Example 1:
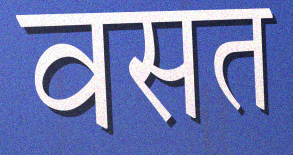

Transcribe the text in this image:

वसत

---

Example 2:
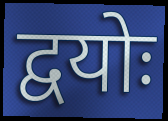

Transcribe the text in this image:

द्वयोः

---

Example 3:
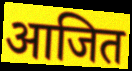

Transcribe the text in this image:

आजित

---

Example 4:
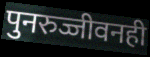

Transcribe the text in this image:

पुनरुज्जीवनही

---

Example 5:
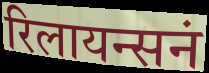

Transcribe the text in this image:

रिलायन्सनं